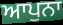
ਆਪੁਨਾ